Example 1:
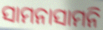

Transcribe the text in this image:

ସାମନାସାମନି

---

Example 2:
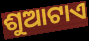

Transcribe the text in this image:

ଶୁଆଟାଏ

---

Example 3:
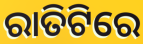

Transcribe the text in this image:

ରାତିଟିରେ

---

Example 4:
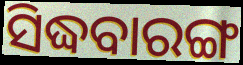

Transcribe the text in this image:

ସିଦ୍ଧବାରଙ୍ଗ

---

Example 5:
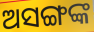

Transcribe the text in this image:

ଅସଙ୍ଗଙ୍କ